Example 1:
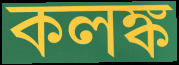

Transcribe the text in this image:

কলঙ্ক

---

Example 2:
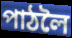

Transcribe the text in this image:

পাঠলৈ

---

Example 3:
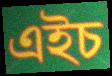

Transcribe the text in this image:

এইচ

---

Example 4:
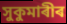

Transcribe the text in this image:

সুকুমাৰীৰ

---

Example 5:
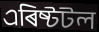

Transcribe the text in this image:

এৰিষ্টটল